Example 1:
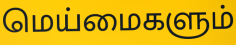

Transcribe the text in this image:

மெய்மைகளும்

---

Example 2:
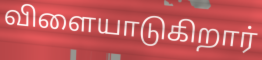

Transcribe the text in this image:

விளையாடுகிறார்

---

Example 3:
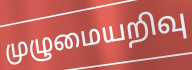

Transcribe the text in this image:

முழுமையறிவு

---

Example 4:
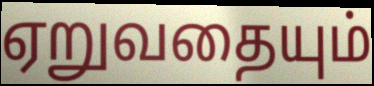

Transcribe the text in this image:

ஏறுவதையும்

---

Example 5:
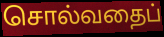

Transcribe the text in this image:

சொல்வதைப்